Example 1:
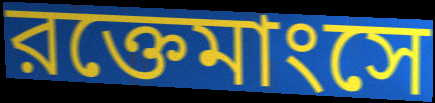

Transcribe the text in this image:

রক্তেমাংসে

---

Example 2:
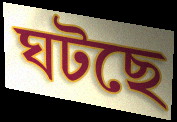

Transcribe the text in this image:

ঘটছে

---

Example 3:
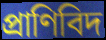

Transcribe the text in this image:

প্রাণিবিদ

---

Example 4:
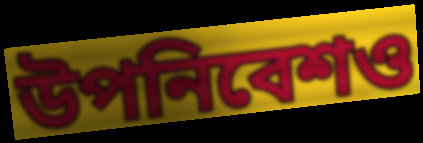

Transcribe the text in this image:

উপনিবেশও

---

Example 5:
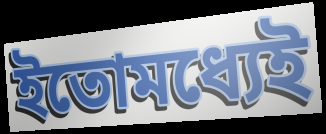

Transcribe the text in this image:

ইতোমধ্যেই